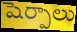
షెర్పాలు